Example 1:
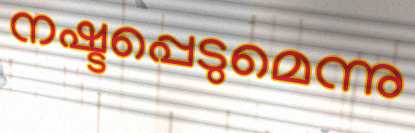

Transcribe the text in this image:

നഷ്ടപ്പെടുമെന്നു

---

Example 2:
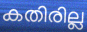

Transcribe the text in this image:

കതിരില്ല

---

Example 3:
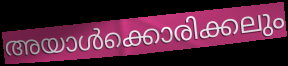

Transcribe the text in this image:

അയാൾക്കൊരിക്കലും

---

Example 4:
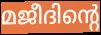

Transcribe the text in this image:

മജീദിന്റെ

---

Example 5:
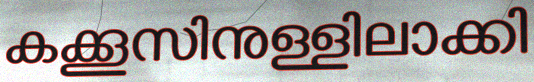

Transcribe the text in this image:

കക്കൂസിനുള്ളിലാക്കി